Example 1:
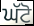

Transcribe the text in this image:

ਘੱਟੋ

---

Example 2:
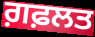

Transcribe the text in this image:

ਗ਼ਫ਼ਲਤ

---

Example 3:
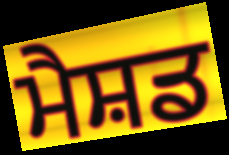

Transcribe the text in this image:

ਮੈਸ਼ਡ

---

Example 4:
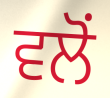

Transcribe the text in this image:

ਵਲੋਂ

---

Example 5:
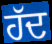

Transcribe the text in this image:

ਹੱਦ